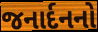
જનાર્દનનો